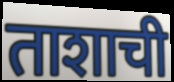
ताशाची